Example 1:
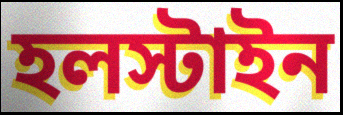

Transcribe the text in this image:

হলস্টাইন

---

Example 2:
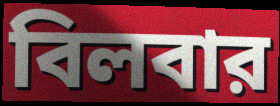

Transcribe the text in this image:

বিলবার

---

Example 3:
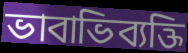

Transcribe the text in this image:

ভাবাভিব্যক্তি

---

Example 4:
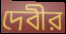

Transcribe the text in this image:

দেবীর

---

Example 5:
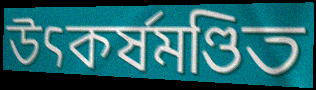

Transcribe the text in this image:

উৎকর্ষমণ্ডিত